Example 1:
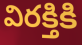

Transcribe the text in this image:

విరక్తికి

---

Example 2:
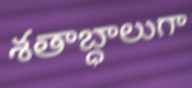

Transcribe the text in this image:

శతాబ్ధాలుగా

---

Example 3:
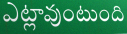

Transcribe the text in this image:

ఎట్లావుంటుంది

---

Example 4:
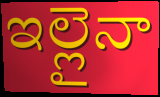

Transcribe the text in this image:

ఇల్లైనా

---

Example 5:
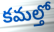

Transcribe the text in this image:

కమల్తో